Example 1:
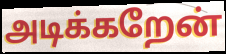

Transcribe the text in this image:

அடிக்கறேன்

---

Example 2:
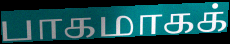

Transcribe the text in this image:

பாகமாகக்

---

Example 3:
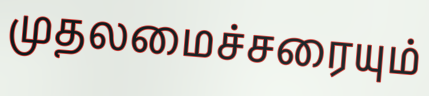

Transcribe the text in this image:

முதலமைச்சரையும்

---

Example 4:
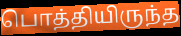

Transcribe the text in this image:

பொத்தியிருந்த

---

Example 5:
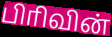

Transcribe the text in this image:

பிரிவின்